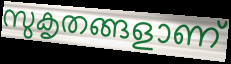
സുകൃതങ്ങളാണ്